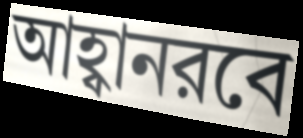
আহ্বানরবে